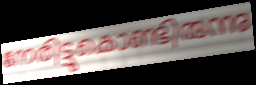
നേരിട്ടുകൊണ്ടിരുന്നു